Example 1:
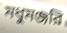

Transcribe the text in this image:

মধুমঞ্জরি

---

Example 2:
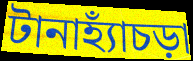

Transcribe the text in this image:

টানাহ্যাঁচড়া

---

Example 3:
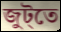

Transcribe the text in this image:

জুট্তে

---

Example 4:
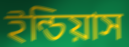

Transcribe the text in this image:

ইন্ডিয়াস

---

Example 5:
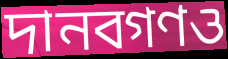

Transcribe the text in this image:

দানবগণও